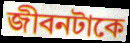
জীবনটাকে